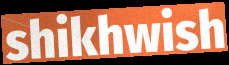
shikhwish